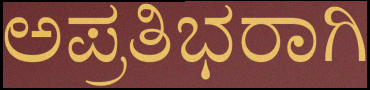
ಅಪ್ರತಿಭರಾಗಿ